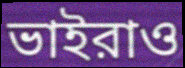
ভাইরাও